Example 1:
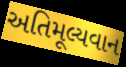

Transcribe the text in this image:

અતિમૂલ્યવાન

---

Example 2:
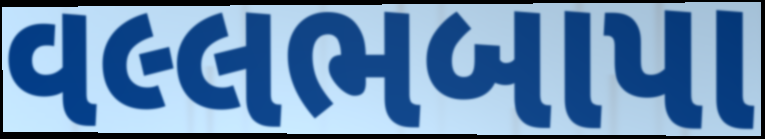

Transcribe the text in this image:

વલ્લભબાપા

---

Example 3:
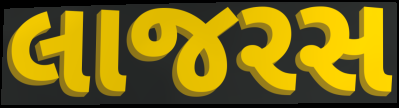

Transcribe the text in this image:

લાજરસ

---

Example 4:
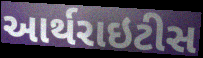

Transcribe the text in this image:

આર્થરાઇટીસ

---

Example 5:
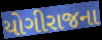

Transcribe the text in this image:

યોગીરાજના